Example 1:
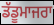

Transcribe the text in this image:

ਡੱਡੂਮਾਜਰਾ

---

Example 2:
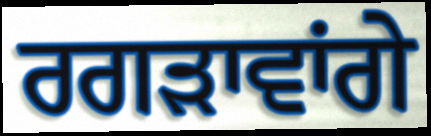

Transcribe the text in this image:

ਰਗੜਾਵਾਂਗੇ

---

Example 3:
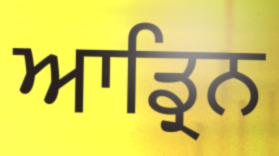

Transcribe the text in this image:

ਆਡ੍ਰਿਨ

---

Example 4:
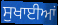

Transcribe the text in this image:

ਸੁਖਾਈਆਂ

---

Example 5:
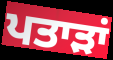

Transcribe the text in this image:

ਪਤਾੜਾਂ